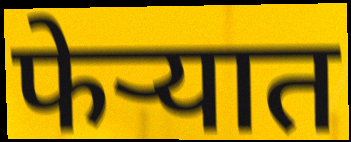
फेऱ्यात